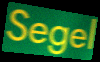
Segel